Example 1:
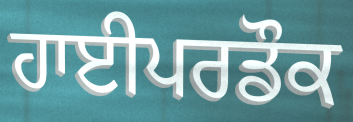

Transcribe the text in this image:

ਹਾਈਪਰਡੌਕ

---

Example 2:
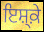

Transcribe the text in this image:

ਇਸ਼੍ਕ਼ੇ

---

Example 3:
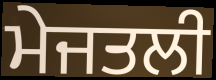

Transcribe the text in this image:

ਮੇਜਤਲੀ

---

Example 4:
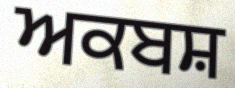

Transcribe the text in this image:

ਅਕਬਸ਼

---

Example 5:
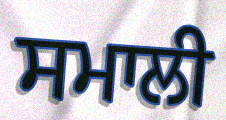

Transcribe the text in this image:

ਸਮਾਲੀ